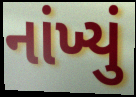
નાંખ્યું